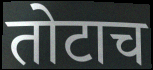
तोटाच